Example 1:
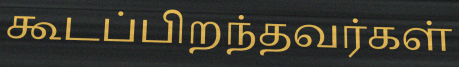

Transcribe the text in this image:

கூடப்பிறந்தவர்கள்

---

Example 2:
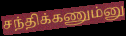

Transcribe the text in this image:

சந்திக்கணும்னு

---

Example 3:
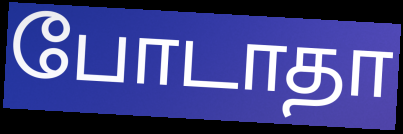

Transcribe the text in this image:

போடாதா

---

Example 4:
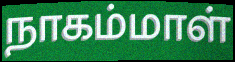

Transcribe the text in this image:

நாகம்மாள்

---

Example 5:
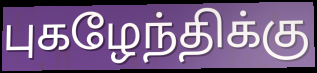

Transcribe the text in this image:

புகழேந்திக்கு